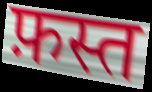
फ़स्त